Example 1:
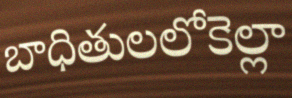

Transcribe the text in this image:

బాధితులలోకెల్లా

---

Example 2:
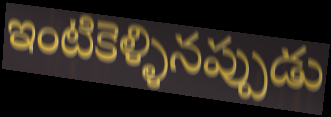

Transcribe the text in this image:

ఇంటికెళ్ళినప్పుడు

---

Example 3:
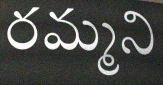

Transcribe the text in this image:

రమ్మని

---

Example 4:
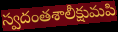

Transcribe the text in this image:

స్వదంతశాలీక్షుమపి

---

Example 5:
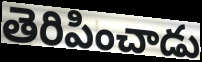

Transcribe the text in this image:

తెరిపించాడు